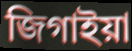
জিগাইয়া